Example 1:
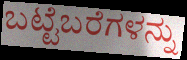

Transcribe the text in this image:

ಬಟ್ಟೆಬರೆಗಳನ್ನು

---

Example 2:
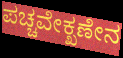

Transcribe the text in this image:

ಪಚ್ಚವೇಕ್ಖಣೇನ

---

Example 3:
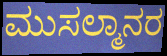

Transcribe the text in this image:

ಮುಸಲ್ಮಾನರ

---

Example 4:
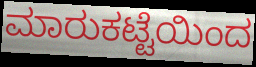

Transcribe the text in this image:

ಮಾರುಕಟ್ಟೆಯಿಂದ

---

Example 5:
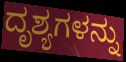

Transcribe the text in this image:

ದೃಶ್ಯಗಳನ್ನು